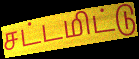
சட்டமிட்டு